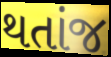
થતાંજ